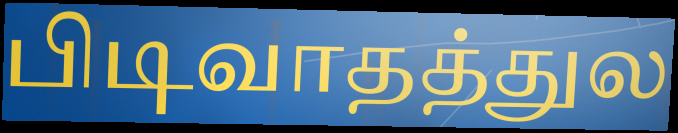
பிடிவாதத்துல